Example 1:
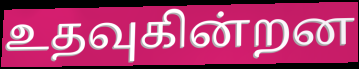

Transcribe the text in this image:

உதவுகின்றன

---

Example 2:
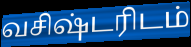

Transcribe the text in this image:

வசிஷ்டரிடம்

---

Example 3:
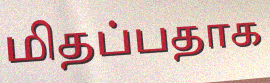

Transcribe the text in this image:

மிதப்பதாக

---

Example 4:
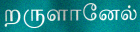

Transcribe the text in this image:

றருளானேல்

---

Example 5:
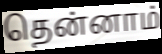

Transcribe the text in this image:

தென்னாம்